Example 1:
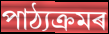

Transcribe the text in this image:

পাঠ্যক্ৰমৰ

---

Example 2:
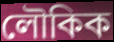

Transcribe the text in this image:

লৌকিক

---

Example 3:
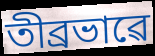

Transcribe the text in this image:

তীব্ৰভাৱে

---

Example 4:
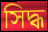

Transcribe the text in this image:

সিদ্ধ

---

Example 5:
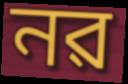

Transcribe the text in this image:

নৱ